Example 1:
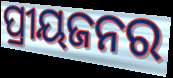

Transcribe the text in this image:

ପ୍ରୀୟଜନର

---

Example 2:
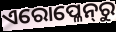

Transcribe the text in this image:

ଏରୋପ୍ଳେନ୍‍ରୁ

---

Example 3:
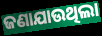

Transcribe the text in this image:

ଜଣାଯାଉଥିଲା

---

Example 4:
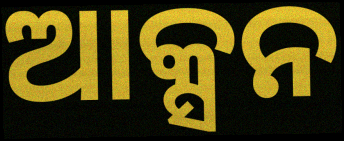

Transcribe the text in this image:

ଆକ୍ସନ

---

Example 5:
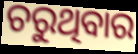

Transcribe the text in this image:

ଚରୁଥିବାର